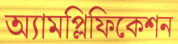
অ্যামপ্লিফিকেশন